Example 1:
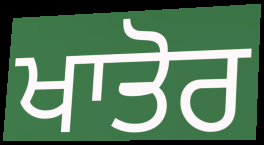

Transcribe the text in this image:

ਖਾਤੋਰ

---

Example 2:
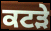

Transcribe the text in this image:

ਕਟੜੇ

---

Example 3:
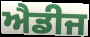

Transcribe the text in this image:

ਐਡੀਜ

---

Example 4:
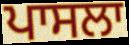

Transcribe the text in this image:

ਪਾਸਲਾ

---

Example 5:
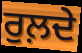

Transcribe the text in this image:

ਰੁਲ਼ਦੇ